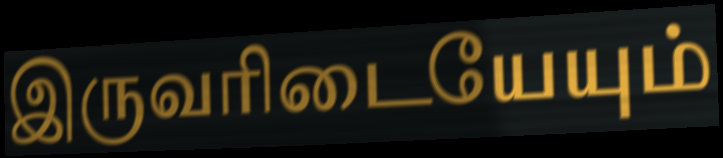
இருவரிடையேயும்